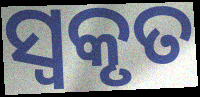
ସ୍ୱକୃତ